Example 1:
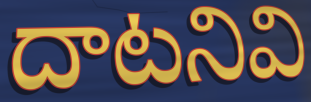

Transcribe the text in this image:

దాటనివి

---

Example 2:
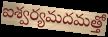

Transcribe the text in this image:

ఐశ్వర్యమదమత్తో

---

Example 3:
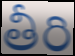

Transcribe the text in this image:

తీరి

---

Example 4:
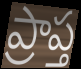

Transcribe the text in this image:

ప్రాప్త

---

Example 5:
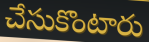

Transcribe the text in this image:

చేసుకొంటారు